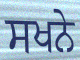
ਸਖਨੇ